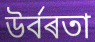
উৰ্বৰতা